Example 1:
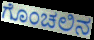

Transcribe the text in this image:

ಗೊಂಚಲಿನ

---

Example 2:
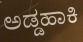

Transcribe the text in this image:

ಅಡ್ಡಹಾಕಿ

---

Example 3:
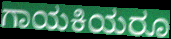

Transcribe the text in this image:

ಗಾಯಕಿಯರೂ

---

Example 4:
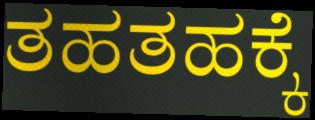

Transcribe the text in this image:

ತಹತಹಕ್ಕೆ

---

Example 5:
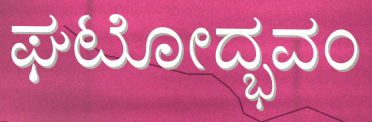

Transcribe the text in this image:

ಘಟೋದ್ಭವಂ